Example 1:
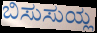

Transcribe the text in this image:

ಬಿಸುಸುಯ್ಲ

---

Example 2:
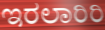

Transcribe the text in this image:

ಇರಲಾರಿರಿ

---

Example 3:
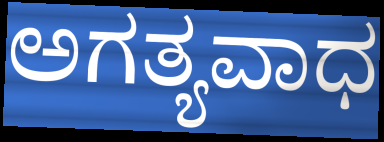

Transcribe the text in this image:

ಅಗತ್ಯವಾಧ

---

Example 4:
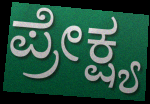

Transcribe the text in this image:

ಪ್ರೇಕ್ಷ್ಯ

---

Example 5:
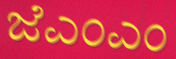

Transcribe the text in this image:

ಜೆಎಂಎಂ